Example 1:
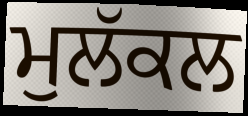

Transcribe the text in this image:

ਮੁਲੱਕਲ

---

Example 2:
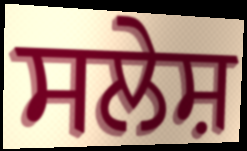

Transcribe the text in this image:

ਸਲੇਸ਼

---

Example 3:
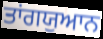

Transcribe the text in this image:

ਤਾਂਗਯੁਆਨ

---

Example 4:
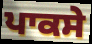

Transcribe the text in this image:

ਪਾਕਸੇ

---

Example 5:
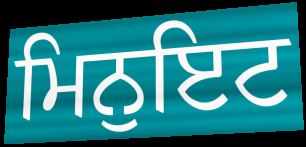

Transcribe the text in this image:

ਮਿਨੁਇਟ